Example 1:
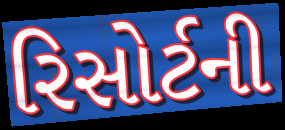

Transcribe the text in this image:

રિસોર્ટની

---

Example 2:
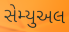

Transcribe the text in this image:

સેમ્યુઅલ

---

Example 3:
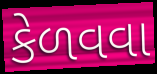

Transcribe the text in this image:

કેળવવા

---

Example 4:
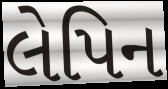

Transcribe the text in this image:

લેપિન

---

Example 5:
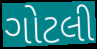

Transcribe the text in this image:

ગોટલી